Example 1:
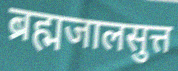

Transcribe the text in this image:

ब्रह्मजालसुत्त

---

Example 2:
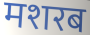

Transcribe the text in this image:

मशरब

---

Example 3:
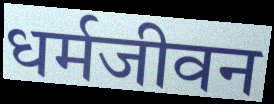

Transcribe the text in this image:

धर्मजीवन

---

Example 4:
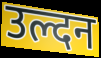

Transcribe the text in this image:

उल्दन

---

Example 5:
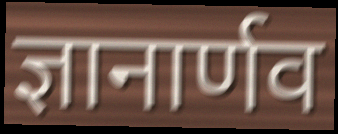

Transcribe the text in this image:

ज्ञानार्णव